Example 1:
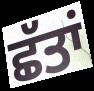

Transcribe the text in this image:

ਛੱਤਾਂ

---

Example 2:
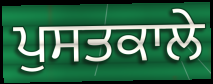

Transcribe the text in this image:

ਪੁਸਤਕਾਲੇ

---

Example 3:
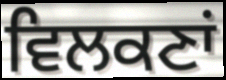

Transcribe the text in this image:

ਵਿਲਕਣਾਂ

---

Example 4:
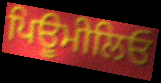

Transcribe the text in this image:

ਪਿਊਮੀਲਿਓ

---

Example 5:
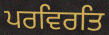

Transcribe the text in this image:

ਪਰਵਿਰਤਿ